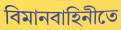
বিমানবাহিনীতে